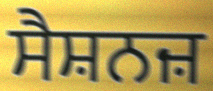
ਸੈਸ਼ਨਜ਼